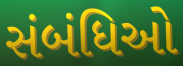
સંબંધિઓ